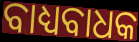
ବାଧ୍ୟବାଧକ